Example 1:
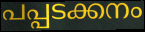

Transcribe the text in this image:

പപ്പടക്കനം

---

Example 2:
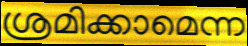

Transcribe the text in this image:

ശ്രമിക്കാമെന്ന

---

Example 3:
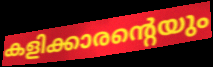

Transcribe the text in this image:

കളിക്കാരന്റെയും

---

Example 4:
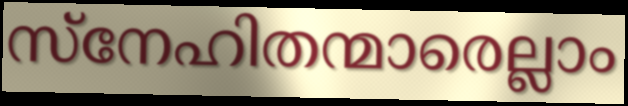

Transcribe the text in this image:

സ്നേഹിതന്മാരെല്ലാം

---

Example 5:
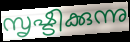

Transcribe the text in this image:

സൃഷ്ടിക്കുന്നു